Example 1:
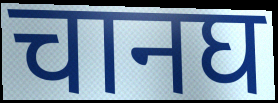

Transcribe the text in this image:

चानघ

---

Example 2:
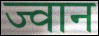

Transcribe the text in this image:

ज्वान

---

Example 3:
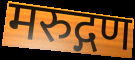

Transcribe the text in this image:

मरुद्गण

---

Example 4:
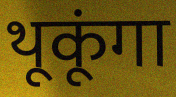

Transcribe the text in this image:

थूकूंगा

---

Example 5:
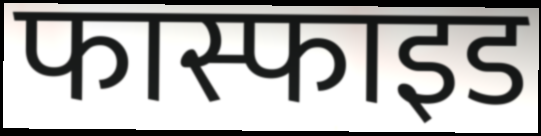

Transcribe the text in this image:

फास्फाइड